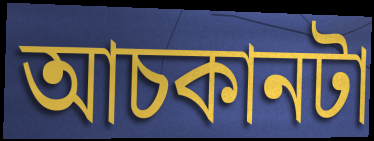
আচকানটা